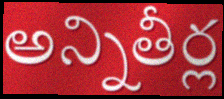
అన్నితీర్ల